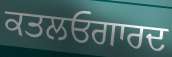
ਕਤਲਓਗਾਰਦ